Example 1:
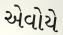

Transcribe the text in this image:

એવોયે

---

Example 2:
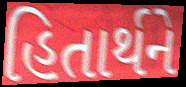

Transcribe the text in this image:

હિતાર્થને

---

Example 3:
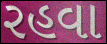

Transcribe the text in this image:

રહવા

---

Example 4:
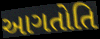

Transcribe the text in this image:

આગતોતિ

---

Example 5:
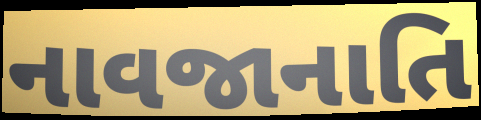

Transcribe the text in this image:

નાવજાનાતિ